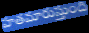
హతమారుస్తుంది